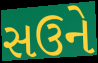
સઉને